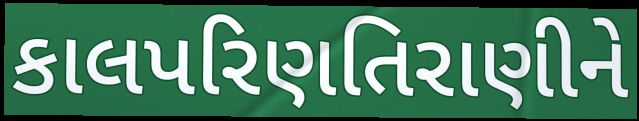
કાલપરિણતિરાણીને